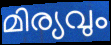
മിര്യവും